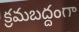
క్రమబద్దంగా